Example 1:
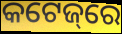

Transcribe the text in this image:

କଟେଜ୍‌ରେ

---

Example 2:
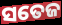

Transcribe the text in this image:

ସତେଜ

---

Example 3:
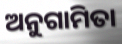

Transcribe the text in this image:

ଅନୁଗାମିତା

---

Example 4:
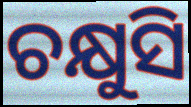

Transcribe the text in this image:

ଚକ୍ଷୁସି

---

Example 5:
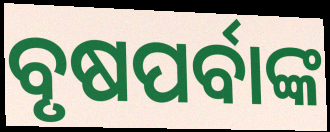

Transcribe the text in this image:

ବୃଷପର୍ବାଙ୍କ